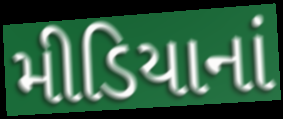
મીડિયાનાં